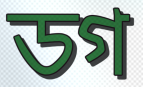
ডগ